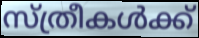
സ്ത്രീകൾക്ക്